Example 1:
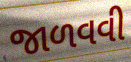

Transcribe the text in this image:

જાળવવી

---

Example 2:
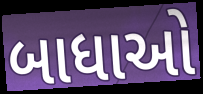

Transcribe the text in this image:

બાધાઓ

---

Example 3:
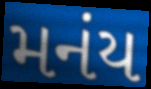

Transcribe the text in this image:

મનંય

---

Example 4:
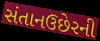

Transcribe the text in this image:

સંતાનઉછેરની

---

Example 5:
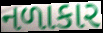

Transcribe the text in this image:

નળાકાર